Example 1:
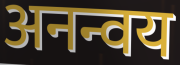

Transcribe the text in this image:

अनन्वय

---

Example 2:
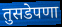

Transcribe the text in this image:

तुसडेपणा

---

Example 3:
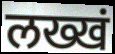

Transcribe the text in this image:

लख्खं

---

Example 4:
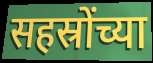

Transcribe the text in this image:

सहस्रोंच्या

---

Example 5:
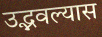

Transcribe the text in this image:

उद्भवल्यास